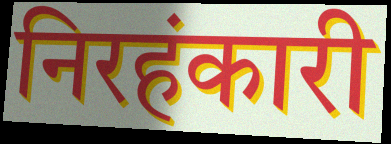
निरहंकारी